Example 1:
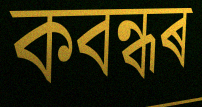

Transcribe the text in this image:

কবন্ধৰ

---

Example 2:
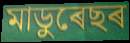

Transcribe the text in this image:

মাডুৰেছৰ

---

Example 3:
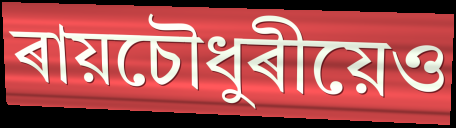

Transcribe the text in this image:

ৰায়চৌধুৰীয়েও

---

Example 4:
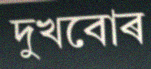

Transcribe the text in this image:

দুখবোৰ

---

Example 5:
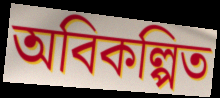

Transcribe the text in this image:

অবিকল্পিত